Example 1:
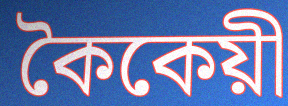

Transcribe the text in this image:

কৈকেয়ী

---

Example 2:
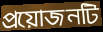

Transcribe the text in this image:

প্রয়োজনটি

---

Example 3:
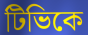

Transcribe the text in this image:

টিভিকে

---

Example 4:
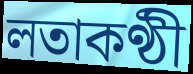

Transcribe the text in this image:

লতাকণ্ঠী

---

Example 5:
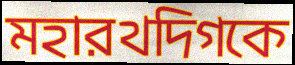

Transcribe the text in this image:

মহারথদিগকে